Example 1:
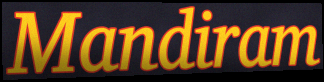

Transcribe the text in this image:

Mandiram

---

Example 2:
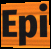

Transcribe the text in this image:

Epi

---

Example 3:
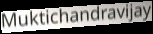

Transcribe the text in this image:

Muktichandravijay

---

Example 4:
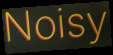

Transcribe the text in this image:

Noisy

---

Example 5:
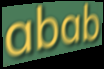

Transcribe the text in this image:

abab